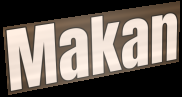
Makan